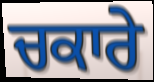
ਚਕਾਰੇ